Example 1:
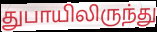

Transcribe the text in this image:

துபாயிலிருந்து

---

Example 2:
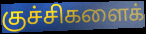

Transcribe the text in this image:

குச்சிகளைக்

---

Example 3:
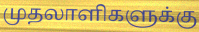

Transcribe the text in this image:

முதலாளிகளுக்கு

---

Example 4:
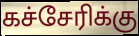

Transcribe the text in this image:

கச்சேரிக்கு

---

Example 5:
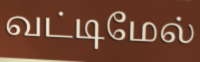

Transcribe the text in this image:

வட்டிமேல்